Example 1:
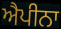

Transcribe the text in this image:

ਐਪੀਨਾ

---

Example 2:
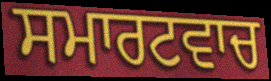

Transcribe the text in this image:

ਸਮਾਰਟਵਾਚ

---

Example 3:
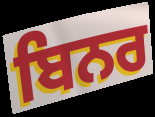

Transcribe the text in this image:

ਬਿਨਰ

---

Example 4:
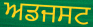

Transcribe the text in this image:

ਅਡਜਸਟ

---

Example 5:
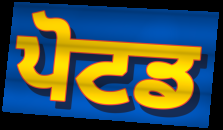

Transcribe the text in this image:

ਪੋਟਡ